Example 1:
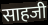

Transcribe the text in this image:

साहजी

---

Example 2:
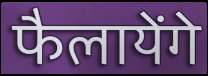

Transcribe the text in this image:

फैलायेंगे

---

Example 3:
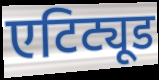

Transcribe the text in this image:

एटिट्यूड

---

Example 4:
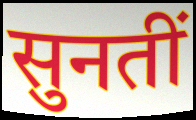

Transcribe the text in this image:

सुनतीं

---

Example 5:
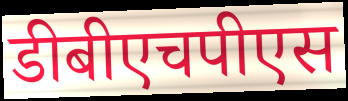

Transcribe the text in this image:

डीबीएचपीएस